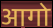
आगो